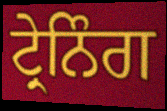
ਟ੍ਰੇਨਿੰਗ